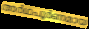
അർഥപൂർണമായ